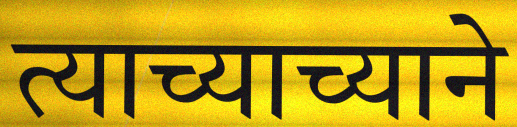
त्याच्याच्याने